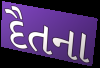
દૈતના